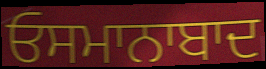
ਓਸਮਾਨਾਬਾਦ